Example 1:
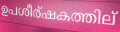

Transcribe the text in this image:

ഉപശീര്ഷകത്തില്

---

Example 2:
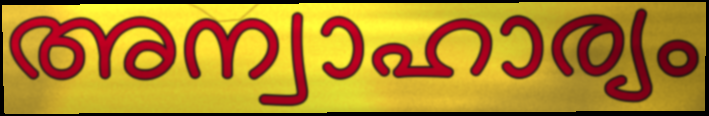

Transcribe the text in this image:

അന്വാഹാര്യം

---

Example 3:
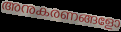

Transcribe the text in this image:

അനുകരണങ്ങളോ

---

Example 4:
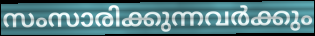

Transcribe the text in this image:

സംസാരിക്കുന്നവർക്കും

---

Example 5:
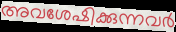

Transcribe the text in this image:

അവശേഷിക്കുന്നവർ